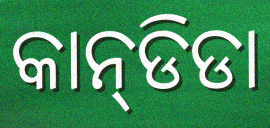
କାନ୍‌ଡିଡା